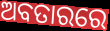
ଅବତାରରେ